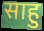
साहु